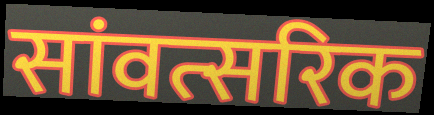
सांवत्सरिक